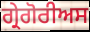
ਗ੍ਰੇਗੋਰੀਅਸ